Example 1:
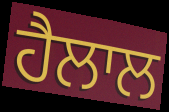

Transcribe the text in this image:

ਹੈਲਾਲ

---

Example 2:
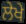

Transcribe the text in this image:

ਲੇਖੇ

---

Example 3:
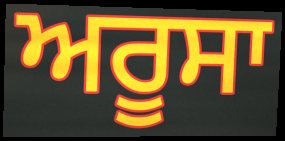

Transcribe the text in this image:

ਅਰੂਸਾ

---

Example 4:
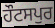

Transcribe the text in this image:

ਹੌਟਸਪੁਰ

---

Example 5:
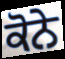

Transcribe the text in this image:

ਕੋਨੇ